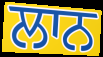
ਲਾਨ